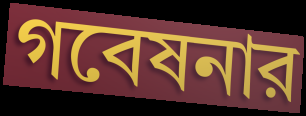
গবেষনার